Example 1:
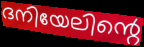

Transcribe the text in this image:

ദനിയേലിന്റെ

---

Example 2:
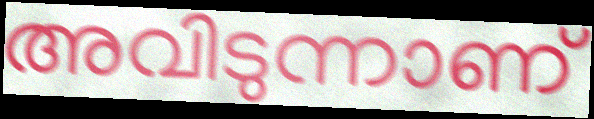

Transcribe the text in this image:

അവിടുന്നാണ്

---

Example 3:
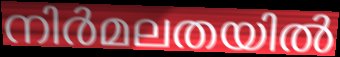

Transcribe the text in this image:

നിർമലതയിൽ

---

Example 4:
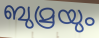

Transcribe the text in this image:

ബുമ്രയും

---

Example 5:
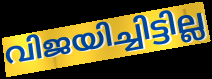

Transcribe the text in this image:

വിജയിച്ചിട്ടില്ല